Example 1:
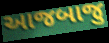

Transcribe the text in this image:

આજબાજુ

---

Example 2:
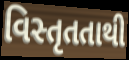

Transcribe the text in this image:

વિસ્તૃતતાથી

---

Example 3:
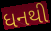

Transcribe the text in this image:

ધનથી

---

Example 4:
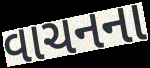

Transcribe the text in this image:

વાચનના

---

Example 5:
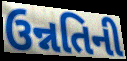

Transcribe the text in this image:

ઉન્નતિની